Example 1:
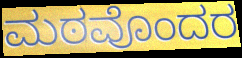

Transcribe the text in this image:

ಮಠವೊಂದರ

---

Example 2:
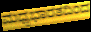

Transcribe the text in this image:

ಮಧ್ಯಭಾರತದಿಂದ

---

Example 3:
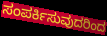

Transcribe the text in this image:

ಸಂಪರ್ಕಿಸುವುದರಿಂದ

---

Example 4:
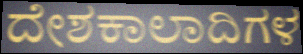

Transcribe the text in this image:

ದೇಶಕಾಲಾದಿಗಳ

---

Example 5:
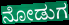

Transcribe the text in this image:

ನೋಡುಗ